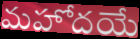
మహోదయే